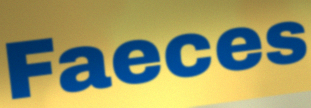
Faeces